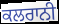
ਕਲਰਾਨੀ